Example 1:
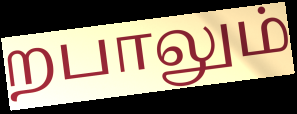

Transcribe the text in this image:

றபாலும்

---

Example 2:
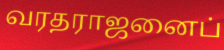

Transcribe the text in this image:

வரதராஜனைப்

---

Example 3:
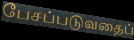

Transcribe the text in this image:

பேசப்படுவதைப்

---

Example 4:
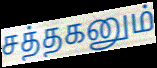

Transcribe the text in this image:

சத்தகனும்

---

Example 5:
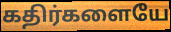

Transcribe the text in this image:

கதிர்களையே